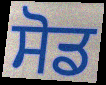
ਸੋਡ